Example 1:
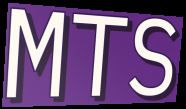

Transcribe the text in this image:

MTS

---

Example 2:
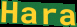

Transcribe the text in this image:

Hara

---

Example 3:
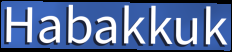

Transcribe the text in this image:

Habakkuk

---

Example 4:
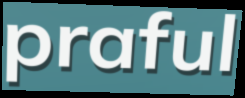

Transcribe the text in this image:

praful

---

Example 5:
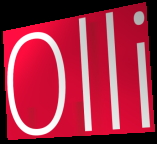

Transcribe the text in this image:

Olli